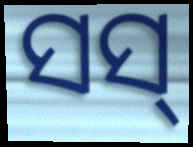
ସସ୍